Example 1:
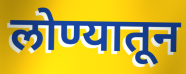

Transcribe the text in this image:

लोण्यातून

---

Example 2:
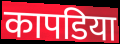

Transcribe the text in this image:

कापडिया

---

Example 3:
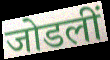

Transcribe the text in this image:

जोडलीं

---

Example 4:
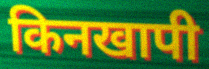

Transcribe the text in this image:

किनखापी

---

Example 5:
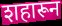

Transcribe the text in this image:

शहारून